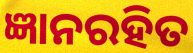
ଜ୍ଞାନରହିତ